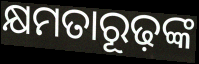
କ୍ଷମତାରୂଢ଼ଙ୍କ